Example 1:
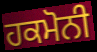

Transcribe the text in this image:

ਹਕਮੋਨੀ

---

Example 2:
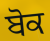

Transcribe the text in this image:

ਬੋਕ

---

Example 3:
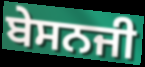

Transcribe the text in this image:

ਬੇਸਨਜੀ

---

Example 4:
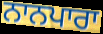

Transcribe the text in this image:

ਨਾਨਪਾਰਾ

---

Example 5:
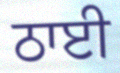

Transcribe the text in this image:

ਠਾਈ